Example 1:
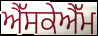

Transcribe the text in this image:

ਐੱਸਕੇਐੱਮ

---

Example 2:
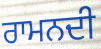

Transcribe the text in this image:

ਰਾਮਨਦੀ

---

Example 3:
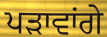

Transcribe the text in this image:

ਪੜਾਵਾਂਗੇ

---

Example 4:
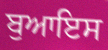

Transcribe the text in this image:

ਬੁਆਇਸ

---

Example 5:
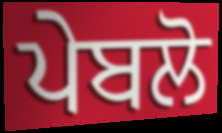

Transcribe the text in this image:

ਪੇਬਲੋ